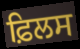
ਫ਼ਿਲਸ